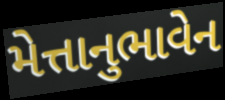
મેત્તાનુભાવેન